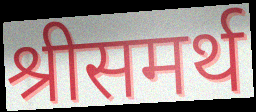
श्रीसमर्थ